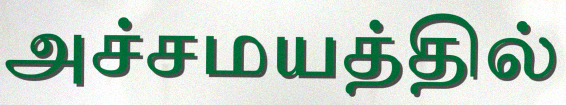
அச்சமயத்தில்